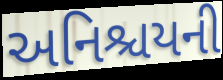
અનિશ્ચયની